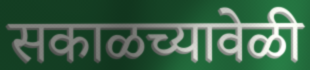
सकाळच्यावेळी